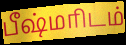
பீஷ்மரிடம்